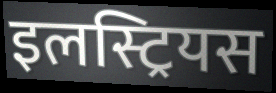
इलस्ट्रियस